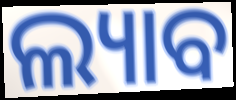
ଲ୍ୟାବ